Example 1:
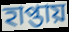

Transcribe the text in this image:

হাপ্তায়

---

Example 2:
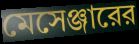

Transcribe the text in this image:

মেসেঞ্জারের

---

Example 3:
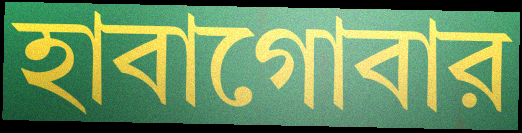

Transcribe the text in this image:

হাবাগোবার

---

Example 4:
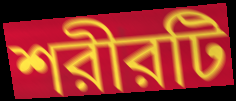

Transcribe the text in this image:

শরীরটি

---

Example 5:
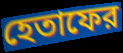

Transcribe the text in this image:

হেতাফের